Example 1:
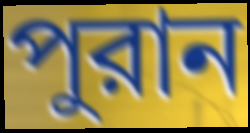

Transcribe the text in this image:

পুরান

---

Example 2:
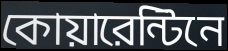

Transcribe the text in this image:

কোয়ারেন্টিনে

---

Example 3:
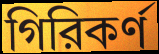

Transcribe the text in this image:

গিরিকর্ণ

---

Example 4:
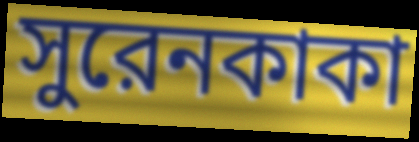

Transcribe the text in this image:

সুরেনকাকা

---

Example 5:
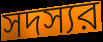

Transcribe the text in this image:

সদস্যর